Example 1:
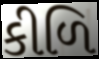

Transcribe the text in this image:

કીળિ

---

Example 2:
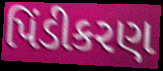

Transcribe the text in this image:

પિંડીકરણ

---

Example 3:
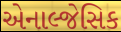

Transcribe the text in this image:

એનાલ્જેસિક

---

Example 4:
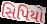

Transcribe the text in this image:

સિપિયો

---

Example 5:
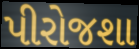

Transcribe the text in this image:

પીરોજશા